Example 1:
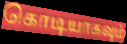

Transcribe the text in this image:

கொடியாகவும்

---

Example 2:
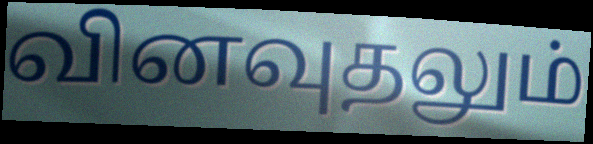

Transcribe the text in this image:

வினவுதலும்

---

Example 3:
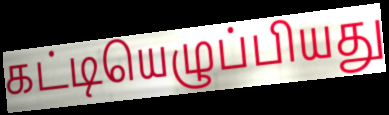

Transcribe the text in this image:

கட்டியெழுப்பியது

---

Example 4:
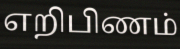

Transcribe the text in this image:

எறிபிணம்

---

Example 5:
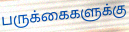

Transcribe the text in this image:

பருக்கைகளுக்கு